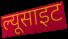
ल्यूसाइट